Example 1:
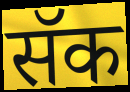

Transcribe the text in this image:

सॅक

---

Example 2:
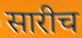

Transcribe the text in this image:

सारीच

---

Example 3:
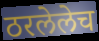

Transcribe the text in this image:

ठरलेलेच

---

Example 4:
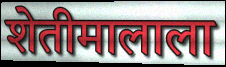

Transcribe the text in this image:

शेतीमालाला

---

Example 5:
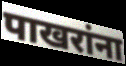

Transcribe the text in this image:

पाखरांना